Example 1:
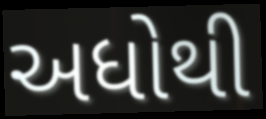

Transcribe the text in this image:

અધોથી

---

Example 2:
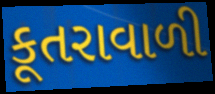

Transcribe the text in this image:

કૂતરાવાળી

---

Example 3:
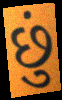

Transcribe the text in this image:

છું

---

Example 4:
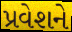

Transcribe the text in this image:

પ્રવેશને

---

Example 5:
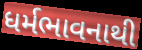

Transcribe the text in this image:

ધર્મભાવનાથી